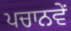
ਪਚਾਨਵੇਂ